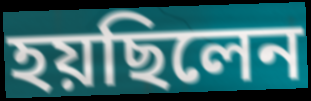
হয়ছিলেন